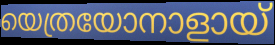
യെത്രയോനാളായ്